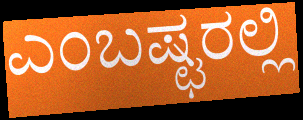
ಎಂಬಷ್ಟರಲ್ಲಿ